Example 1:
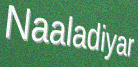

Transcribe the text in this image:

Naaladiyar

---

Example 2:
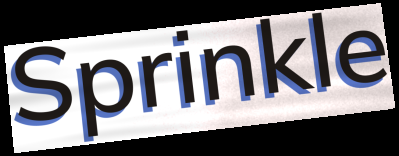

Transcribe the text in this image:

Sprinkle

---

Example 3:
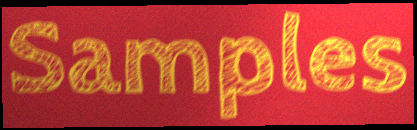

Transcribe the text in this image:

Samples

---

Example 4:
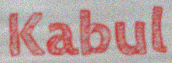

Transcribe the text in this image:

Kabul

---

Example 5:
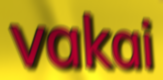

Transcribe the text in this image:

vakai